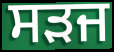
ਸੜਜ